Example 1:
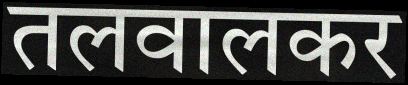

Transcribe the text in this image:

तलवालकर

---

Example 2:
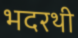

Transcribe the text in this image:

भदरथी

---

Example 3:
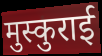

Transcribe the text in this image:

मुस्कुराई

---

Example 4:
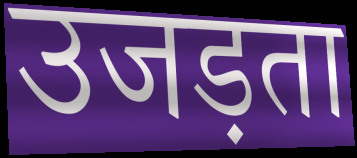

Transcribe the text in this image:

उजड़ता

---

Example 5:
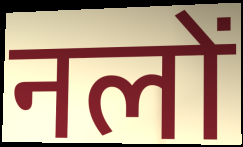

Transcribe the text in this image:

नलों